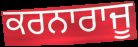
ਕਰਨਾਰਾਜੂ